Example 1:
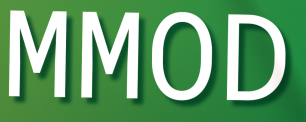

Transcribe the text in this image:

MMOD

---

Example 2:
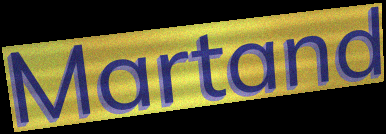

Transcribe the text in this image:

Martand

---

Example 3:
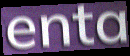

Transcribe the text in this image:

enta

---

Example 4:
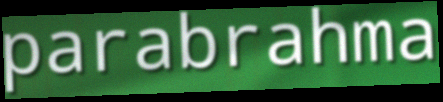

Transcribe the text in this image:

parabrahma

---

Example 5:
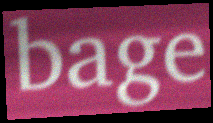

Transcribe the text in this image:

bage